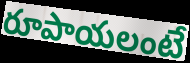
రూపాయలంటే